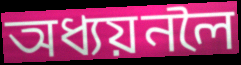
অধ্যয়নলৈ